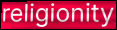
religionity